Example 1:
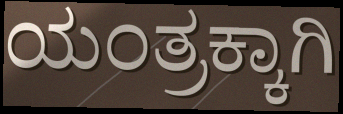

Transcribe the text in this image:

ಯಂತ್ರಕ್ಕಾಗಿ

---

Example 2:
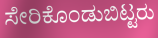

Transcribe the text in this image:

ಸೇರಿಕೊಂಡುಬಿಟ್ಟರು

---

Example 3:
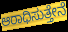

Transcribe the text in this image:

ಆರಾಧಿಸುತ್ತೇನೆ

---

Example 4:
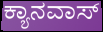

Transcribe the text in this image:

ಕ್ಯಾನವಾಸ್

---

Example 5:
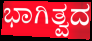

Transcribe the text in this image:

ಭಾಗಿತ್ವದ